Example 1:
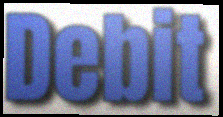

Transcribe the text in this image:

Debit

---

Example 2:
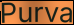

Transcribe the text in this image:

Purva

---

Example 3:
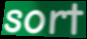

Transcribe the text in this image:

sort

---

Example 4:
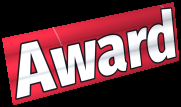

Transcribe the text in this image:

Award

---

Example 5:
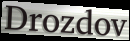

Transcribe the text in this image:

Drozdov